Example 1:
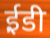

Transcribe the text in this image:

ई़डी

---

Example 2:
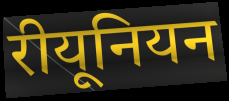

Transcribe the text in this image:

रीयूनियन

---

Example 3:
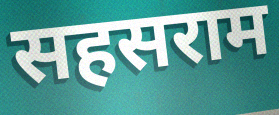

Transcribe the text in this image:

सहसराम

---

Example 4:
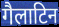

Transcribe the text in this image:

गैलाटिन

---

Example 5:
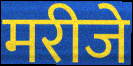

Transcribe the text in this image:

मरीजे